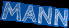
MANN